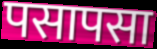
पसापसा